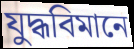
যুদ্ধবিমানে